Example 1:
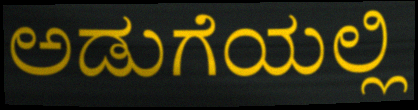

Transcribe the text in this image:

ಅಡುಗೆಯಲ್ಲಿ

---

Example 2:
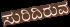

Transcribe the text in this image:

ಸುರಿದಿರುವ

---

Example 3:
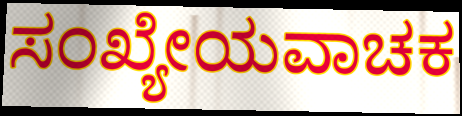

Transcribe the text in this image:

ಸಂಖ್ಯೇಯವಾಚಕ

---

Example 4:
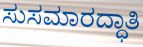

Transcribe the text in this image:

ಸುಸಮಾರದ್ಧಾತಿ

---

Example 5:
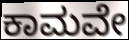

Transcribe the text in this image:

ಕಾಮವೇ